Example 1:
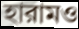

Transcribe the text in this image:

হারামও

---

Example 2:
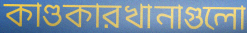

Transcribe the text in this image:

কাণ্ডকারখানাগুলো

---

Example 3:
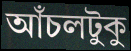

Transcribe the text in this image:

আঁচলটুকু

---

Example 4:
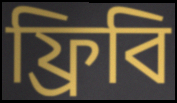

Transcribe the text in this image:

ফ্রিবি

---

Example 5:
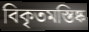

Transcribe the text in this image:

বিকৃতমস্তিষ্ক